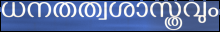
ധനതത്വശാസ്ത്രവും